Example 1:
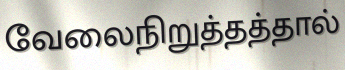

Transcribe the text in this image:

வேலைநிறுத்தத்தால்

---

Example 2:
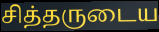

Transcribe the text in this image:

சித்தருடைய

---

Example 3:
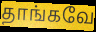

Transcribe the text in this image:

தாங்கவே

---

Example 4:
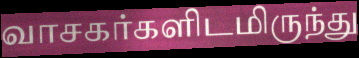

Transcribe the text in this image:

வாசகர்களிடமிருந்து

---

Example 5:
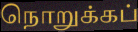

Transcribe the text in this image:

நொறுக்கப்